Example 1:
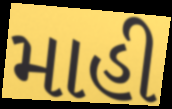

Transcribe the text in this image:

માહી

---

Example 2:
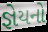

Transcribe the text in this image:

જ્ઞેયનો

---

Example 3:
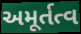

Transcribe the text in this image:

અમૂર્તત્વ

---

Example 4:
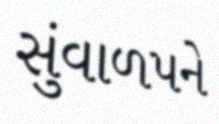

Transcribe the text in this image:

સુંવાળપને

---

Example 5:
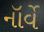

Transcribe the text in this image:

નૉર્વે